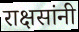
राक्षसांनी